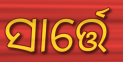
ସାର୍ତ୍ତେ